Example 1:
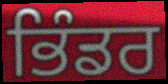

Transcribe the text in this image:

ਭਿੰਡਰ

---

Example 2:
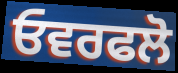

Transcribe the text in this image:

ਓਵਰਫਲੋ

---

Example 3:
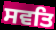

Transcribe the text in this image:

ਸਵਤਿ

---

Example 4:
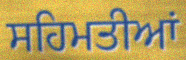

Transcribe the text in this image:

ਸਹਿਮਤੀਆਂ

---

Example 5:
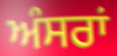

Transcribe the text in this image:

ਅੰਸਰਾਂ